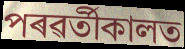
পৰৱৰ্তীকালত